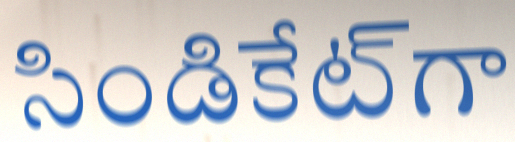
సిండికేట్‌గా